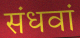
संधवां